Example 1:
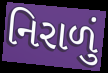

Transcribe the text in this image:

નિરાળું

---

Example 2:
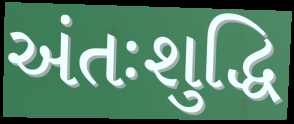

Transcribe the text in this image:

અંતઃશુદ્ધિ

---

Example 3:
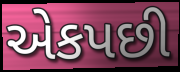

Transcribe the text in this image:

એકપછી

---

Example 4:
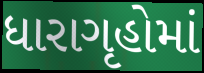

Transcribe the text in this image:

ધારાગૃહોમાં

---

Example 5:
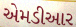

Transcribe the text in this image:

એમડીઆર